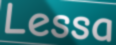
Lessa